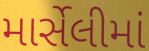
માર્સેલીમાં